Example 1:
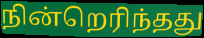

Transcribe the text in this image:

நின்றெரிந்தது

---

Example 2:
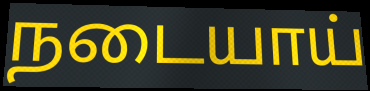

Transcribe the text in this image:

நடையாய்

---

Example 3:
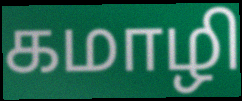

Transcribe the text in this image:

கமாழி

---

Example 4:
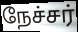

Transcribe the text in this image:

நேச்சர்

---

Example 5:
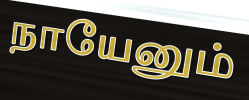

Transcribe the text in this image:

நாயேனும்